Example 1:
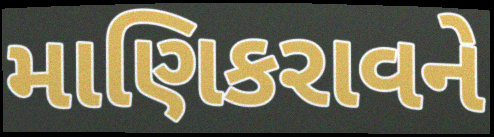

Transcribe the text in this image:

માણિકરાવને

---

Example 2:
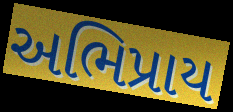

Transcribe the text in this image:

અભિપ્રાય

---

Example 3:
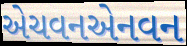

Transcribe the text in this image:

એચવનએનવન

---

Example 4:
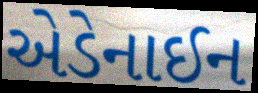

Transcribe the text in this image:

એડેનાઈન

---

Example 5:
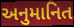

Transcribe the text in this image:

અનુમાનિત